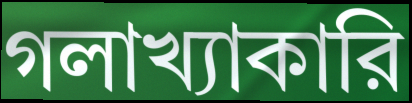
গলাখ্যাকারি